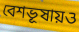
বেশভূষায়ও